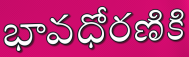
భావధోరణికి